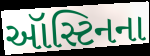
ઑસ્ટિનના